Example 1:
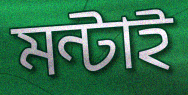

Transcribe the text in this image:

মন্টাই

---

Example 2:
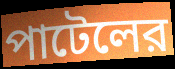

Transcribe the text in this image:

পাটেলের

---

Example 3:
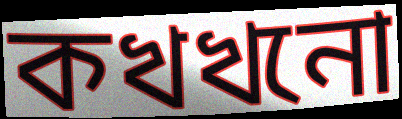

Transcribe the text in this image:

কখখনো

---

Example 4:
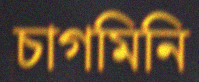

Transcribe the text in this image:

চাগমিনি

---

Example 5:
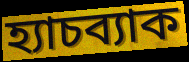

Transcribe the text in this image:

হ্যাচব্যাক